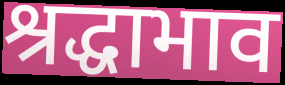
श्रद्धाभाव